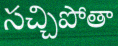
సచ్చిపోతా